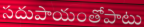
సదుపాయంతోపాటు